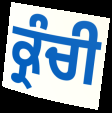
ਕ੍ਰੰਚੀ